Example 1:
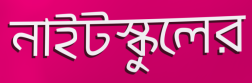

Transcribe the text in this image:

নাইটস্কুলের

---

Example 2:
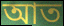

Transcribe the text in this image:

আত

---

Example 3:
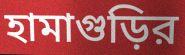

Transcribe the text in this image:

হামাগুড়ির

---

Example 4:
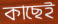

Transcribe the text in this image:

কাছেই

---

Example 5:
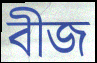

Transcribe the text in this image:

বীজ